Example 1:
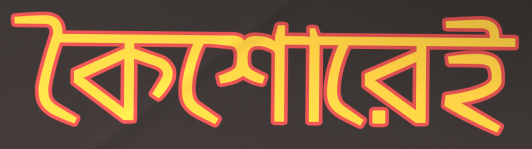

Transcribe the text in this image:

কৈশোরেই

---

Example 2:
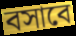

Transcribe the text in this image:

বসাবে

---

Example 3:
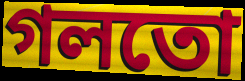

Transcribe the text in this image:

গলতো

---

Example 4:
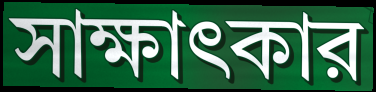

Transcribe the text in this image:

সাক্ষাৎকার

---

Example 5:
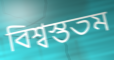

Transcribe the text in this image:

বিশ্বস্ততম